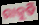
ରାଜୁତି